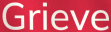
Grieve